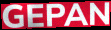
GEPAN